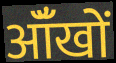
ऑँखों